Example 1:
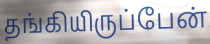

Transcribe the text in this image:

தங்கியிருப்பேன்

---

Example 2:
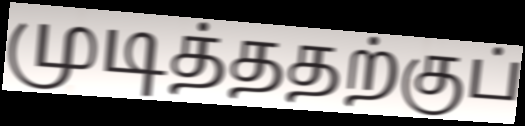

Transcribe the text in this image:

முடித்ததற்குப்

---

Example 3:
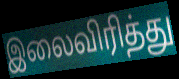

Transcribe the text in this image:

இலைவிரித்து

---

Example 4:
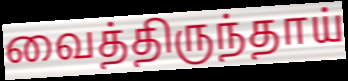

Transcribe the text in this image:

வைத்திருந்தாய்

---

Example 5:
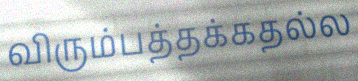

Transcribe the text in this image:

விரும்பத்தக்கதல்ல